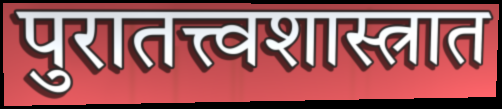
पुरातत्त्वशास्त्रात